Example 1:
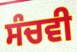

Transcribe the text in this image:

ਸੰਚਵੀ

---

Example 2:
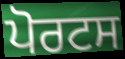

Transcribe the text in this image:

ਪੋਰਟਸ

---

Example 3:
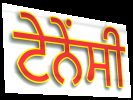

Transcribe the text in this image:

ਟੇਨੇਂਸੀ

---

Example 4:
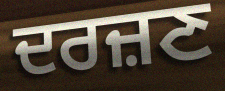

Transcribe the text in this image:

ਦਰਜ਼ਣ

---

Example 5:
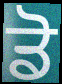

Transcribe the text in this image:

ਡੋ